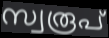
സ്വരൂപ്